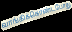
வாங்கிக்கொண்டபோது